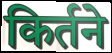
किर्तने